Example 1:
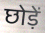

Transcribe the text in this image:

छोड़ें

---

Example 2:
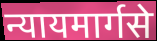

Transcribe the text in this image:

न्यायमार्गसे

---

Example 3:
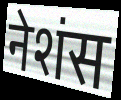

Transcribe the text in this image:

नेशंस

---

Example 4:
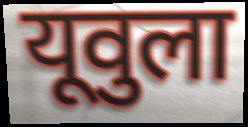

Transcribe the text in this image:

यूवुला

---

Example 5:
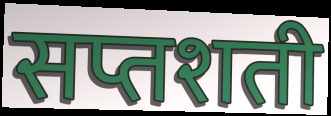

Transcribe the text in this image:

सप्तशती